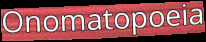
Onomatopoeia